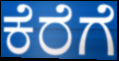
ಕೆರೆಗೆ